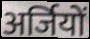
अर्जियों